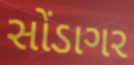
સોંડાગર